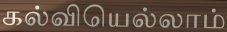
கல்வியெல்லாம்